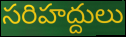
సరిహద్దులు